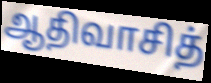
ஆதிவாசித்